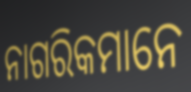
ନାଗରିକମାନେ